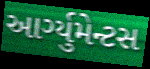
આર્ગ્યુમેન્ટસ